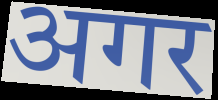
अगर